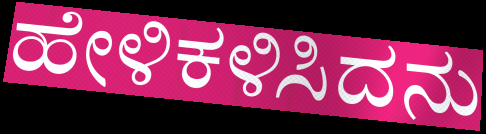
ಹೇಳಿಕಳಿಸಿದನು